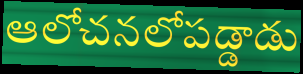
ఆలోచనలోపడ్డాడు